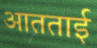
आतताई